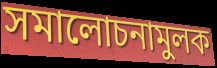
সমালোচনামুলক